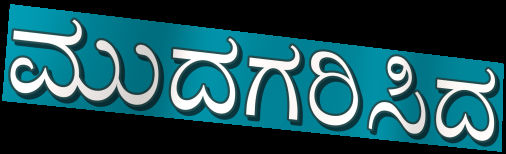
ಮುದಗರಿಸಿದ